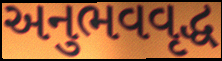
અનુભવવૃદ્ધ